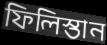
ফিলিস্তান